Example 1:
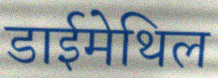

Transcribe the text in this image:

डाईमेथिल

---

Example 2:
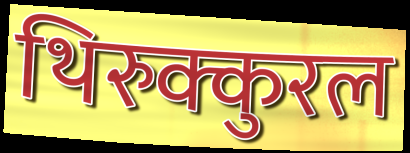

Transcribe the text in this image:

थिरुक्कुरल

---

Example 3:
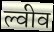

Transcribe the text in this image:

ल्वीव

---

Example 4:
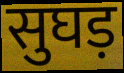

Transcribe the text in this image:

सुघड़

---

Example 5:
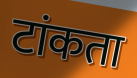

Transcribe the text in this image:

टांकता